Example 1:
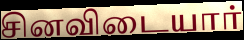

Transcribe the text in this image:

சினவிடையார்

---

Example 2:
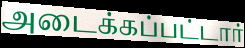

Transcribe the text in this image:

அடைக்கப்பட்டார்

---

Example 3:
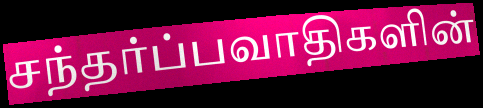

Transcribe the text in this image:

சந்தர்ப்பவாதிகளின்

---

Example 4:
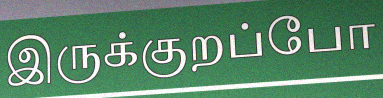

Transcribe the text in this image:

இருக்குறப்போ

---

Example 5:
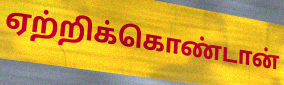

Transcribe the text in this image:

ஏற்றிக்கொண்டான்